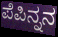
ಪೆಪಿನ್ನನ